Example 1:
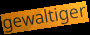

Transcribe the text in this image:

gewaltiger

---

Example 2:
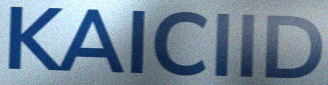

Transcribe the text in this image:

KAICIID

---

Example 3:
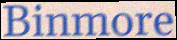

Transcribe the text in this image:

Binmore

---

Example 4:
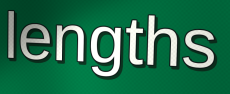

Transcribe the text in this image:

lengths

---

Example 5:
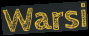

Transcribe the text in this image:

Warsi